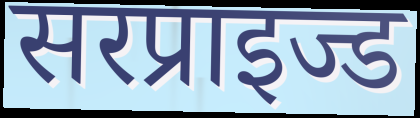
सरप्राइज्ड